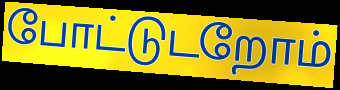
போட்டுடறோம்